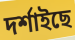
দৰ্শাইছে